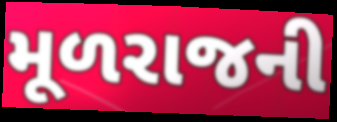
મૂળરાજની